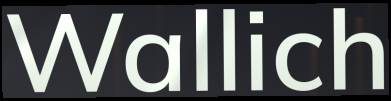
Wallich